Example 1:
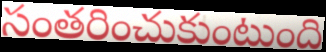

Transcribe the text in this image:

సంతరించుకుంటుంది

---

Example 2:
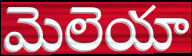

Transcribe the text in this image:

మెలెయా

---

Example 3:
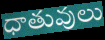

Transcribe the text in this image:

ధాతువులు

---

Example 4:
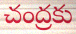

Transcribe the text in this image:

చంద్రకు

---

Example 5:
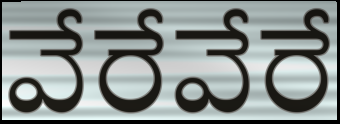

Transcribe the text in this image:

వేరేవేరే